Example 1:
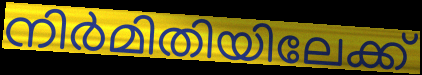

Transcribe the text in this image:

നിർമിതിയിലേക്ക്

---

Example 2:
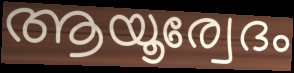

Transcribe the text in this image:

ആയൂര്വേദം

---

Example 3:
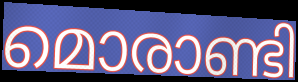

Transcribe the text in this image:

മൊരാണ്ടി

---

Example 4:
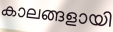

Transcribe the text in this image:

കാലങ്ങളായി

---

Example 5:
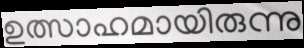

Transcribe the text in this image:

ഉത്സാഹമായിരുന്നു